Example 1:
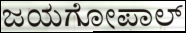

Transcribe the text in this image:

ಜಯಗೋಪಾಲ್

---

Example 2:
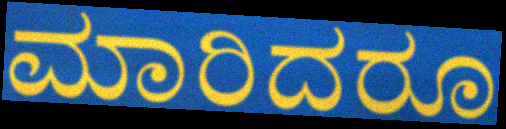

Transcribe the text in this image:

ಮಾರಿದರೂ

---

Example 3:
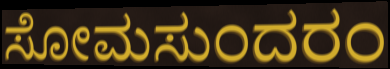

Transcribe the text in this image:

ಸೋಮಸುಂದರಂ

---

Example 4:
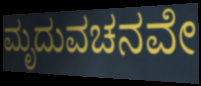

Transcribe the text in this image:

ಮೃದುವಚನವೇ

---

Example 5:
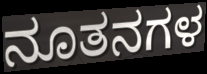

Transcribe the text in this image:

ನೂತನಗಳ